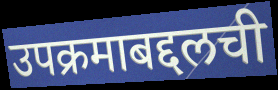
उपक्रमाबद्दलची